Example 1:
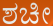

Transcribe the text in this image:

ಶಚೀ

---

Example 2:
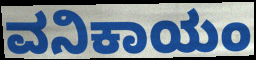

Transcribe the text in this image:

ವನಿಕಾಯಂ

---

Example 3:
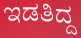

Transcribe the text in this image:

ಇಡತಿದ್ದ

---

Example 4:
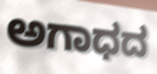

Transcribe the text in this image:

ಅಗಾಧದ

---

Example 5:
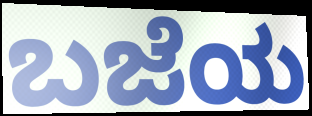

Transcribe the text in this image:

ಬಜೆಯ